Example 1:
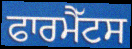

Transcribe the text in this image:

ਫਾਰਮੈੱਟਸ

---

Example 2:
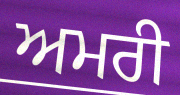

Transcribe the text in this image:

ਅਮਰੀ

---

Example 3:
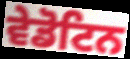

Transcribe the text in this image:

ਵੇਡੋਟਿਨ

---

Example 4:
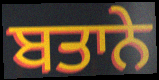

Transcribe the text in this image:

ਬਤਾਨੇ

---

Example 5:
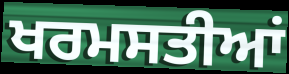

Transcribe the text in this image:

ਖਰਮਸਤੀਆਂ